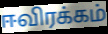
ஈவிரக்கம்